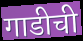
गाडीची